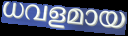
ധവളമായ